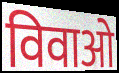
विवाओ